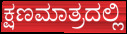
ಕ್ಷಣಮಾತ್ರದಲ್ಲಿ